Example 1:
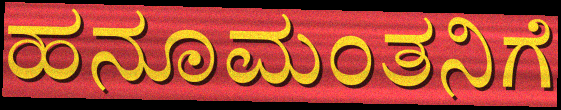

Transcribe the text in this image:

ಹನೂಮಂತನಿಗೆ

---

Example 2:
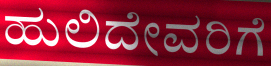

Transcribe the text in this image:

ಹುಲಿದೇವರಿಗೆ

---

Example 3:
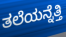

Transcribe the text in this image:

ತಲೆಯನ್ನೆತ್ತಿ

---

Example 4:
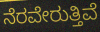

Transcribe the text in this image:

ನೆರವೇರುತ್ತಿವೆ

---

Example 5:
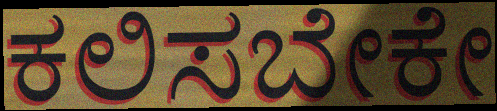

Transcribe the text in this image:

ಕಲಿಸಬೇಕೇ